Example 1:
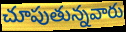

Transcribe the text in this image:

చూపుతున్నవారు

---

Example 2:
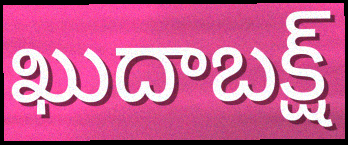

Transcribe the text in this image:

ఖుదాబక్ష్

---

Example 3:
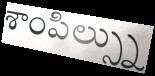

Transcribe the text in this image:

శాంపిల్స్ను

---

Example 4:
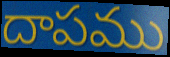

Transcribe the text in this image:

దాపము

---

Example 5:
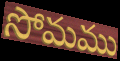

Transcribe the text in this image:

సోమము